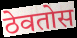
ठेवतोस